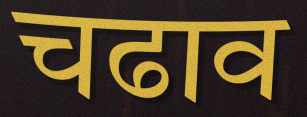
चढाव